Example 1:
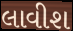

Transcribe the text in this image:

લાવીશ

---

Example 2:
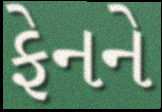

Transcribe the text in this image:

ફેનને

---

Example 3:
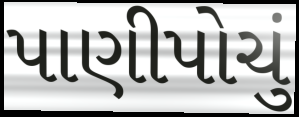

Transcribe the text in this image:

પાણીપોચું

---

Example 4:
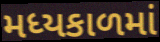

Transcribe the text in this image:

મધ્યકાળમાં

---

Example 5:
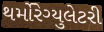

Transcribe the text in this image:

થર્મોરેગ્યુલેટરી